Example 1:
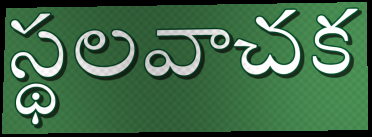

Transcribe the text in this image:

స్థలవాచక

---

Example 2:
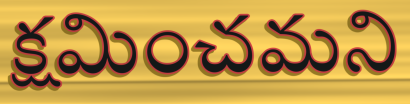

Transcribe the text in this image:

క్షమించమని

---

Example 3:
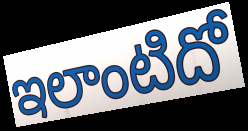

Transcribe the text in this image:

ఇలాంటిదో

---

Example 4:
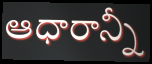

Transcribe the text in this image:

ఆధారాన్నీ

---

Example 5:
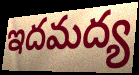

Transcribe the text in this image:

ఇదమద్య